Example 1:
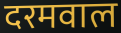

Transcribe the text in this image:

दरमवाल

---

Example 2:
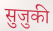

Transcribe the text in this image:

सुजुकी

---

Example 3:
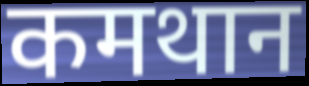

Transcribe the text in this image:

कमथान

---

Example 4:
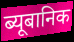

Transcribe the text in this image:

ब्यूबानिक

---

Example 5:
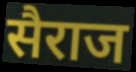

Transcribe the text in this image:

सैराज